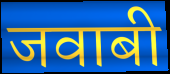
जवाबी